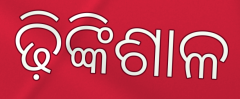
ଢ଼ିଙ୍କିଶାଳ